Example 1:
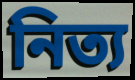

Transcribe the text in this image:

নিত্য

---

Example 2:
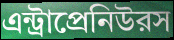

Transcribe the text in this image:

এন্ট্রাপ্রেনিউরস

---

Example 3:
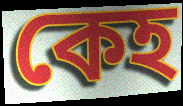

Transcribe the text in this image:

কেহ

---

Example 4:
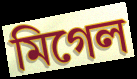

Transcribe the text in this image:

মিগেল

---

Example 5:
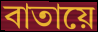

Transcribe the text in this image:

বাতায়ে